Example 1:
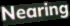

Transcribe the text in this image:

Nearing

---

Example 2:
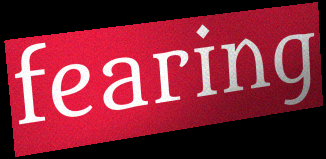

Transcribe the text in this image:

fearing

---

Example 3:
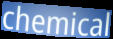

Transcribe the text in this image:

chemical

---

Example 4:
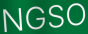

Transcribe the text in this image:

NGSO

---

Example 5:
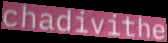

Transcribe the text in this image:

chadivithe